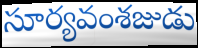
సూర్యవంశజుడు